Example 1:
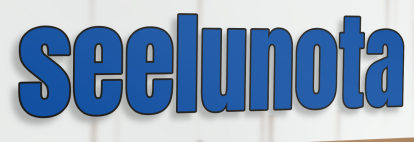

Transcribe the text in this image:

seelunota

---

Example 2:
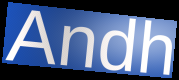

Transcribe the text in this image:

Andh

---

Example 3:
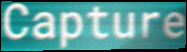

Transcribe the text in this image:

Capture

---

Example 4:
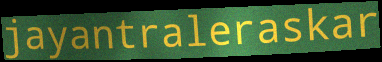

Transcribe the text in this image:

jayantraleraskar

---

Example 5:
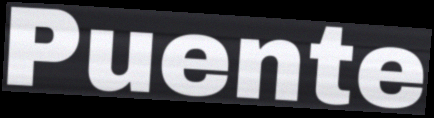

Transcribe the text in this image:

Puente